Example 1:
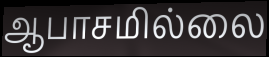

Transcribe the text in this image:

ஆபாசமில்லை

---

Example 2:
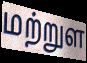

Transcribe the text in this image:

மற்றுள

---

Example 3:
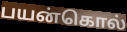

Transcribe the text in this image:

பயன்கொல்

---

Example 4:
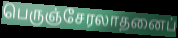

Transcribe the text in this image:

பெருஞ்சேரலாதனைப்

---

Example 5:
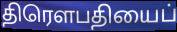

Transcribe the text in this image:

திரெளபதியைப்